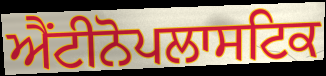
ਐਂਟੀਨੋਪਲਾਸਟਿਕ